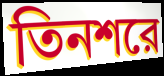
তিনশরে